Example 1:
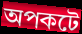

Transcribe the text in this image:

অপকটে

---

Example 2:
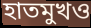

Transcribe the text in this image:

হাতমুখও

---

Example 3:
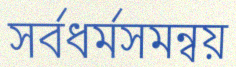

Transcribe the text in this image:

সর্বধর্মসমন্বয়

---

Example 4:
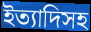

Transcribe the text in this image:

ইত্যাদিসহ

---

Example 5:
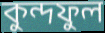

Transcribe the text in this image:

কুন্দফুল